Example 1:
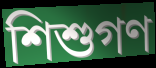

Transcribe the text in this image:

শিশুগণ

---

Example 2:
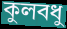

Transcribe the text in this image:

কুলবধু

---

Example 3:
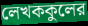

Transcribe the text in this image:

লেখককুলের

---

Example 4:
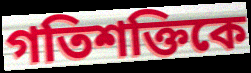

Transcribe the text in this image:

গতিশক্তিকে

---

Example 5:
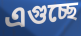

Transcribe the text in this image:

এগুচ্ছে